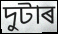
দুটাৰ